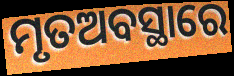
ମୃତଅବସ୍ଥାରେ